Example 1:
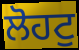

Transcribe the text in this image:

ਲੋਹਟੁ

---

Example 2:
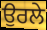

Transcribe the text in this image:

ਉਰਲੇ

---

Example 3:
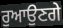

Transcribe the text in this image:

ਰੁਆਉਣਗੇ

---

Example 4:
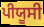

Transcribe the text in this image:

ਪੀਯੂਸੀ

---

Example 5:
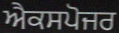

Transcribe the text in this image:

ਐਕਸਪੋਜਰ